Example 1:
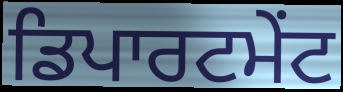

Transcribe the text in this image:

ਡਿਪਾਰਟਮੇਂਟ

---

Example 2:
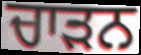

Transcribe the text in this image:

ਚਾੜਨ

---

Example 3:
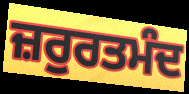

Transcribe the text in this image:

ਜ਼ਰੁਰਤਮੰਦ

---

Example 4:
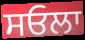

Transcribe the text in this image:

ਸਓਲਾ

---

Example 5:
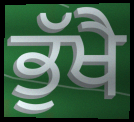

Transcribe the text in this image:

ਭੁੱਖੈ